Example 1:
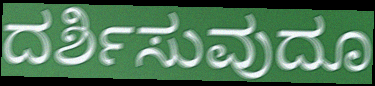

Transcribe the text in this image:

ದರ್ಶಿಸುವುದೂ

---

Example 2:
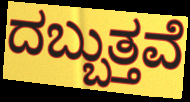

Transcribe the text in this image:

ದಬ್ಬುತ್ತವೆ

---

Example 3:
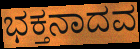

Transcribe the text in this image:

ಭಕ್ತನಾದವ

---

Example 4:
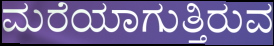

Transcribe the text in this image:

ಮರೆಯಾಗುತ್ತಿರುವ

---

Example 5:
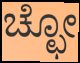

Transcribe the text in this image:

ಚ್ಛೋ